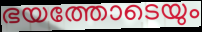
ഭയത്തോടെയും